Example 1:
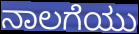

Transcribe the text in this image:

ನಾಲಗೆಯು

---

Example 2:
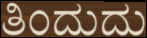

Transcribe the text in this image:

ತಿಂದುದು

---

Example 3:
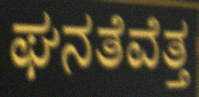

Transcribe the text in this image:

ಘನತೆವೆತ್ತ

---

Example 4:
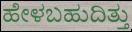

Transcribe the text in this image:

ಹೇಳಬಹುದಿತ್ತು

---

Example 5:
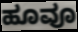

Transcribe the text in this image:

ಹೂವೂ